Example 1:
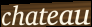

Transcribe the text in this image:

chateau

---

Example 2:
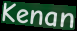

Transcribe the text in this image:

Kenan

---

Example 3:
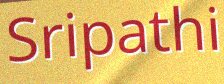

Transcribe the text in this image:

Sripathi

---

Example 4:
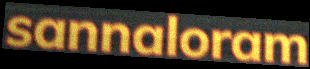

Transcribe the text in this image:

sannaloram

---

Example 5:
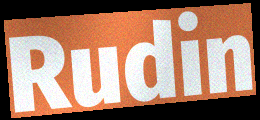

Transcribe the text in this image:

Rudin